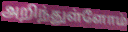
அறிந்துள்ளோம்